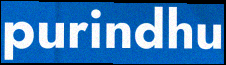
purindhu